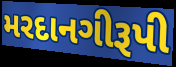
મરદાનગીરૂપી